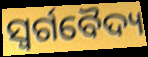
ସ୍ୱର୍ଗବୈଦ୍ୟ